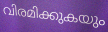
വിരമിക്കുകയും